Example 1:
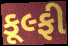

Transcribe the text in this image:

કૂલ્ફી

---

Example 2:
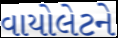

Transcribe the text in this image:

વાયોલેટને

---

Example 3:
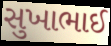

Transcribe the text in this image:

સુખાભાઈ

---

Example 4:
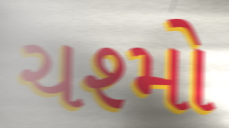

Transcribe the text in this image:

ચશ્મો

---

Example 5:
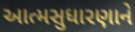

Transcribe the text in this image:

આત્મસુધારણાને